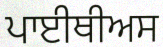
ਪਾਈਥੀਅਸ